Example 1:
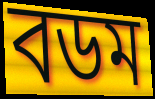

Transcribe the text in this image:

বডম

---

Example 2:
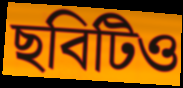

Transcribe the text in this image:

ছবিটিও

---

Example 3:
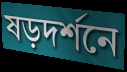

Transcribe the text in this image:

ষড়দর্শনে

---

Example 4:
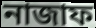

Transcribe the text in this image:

নাজাফ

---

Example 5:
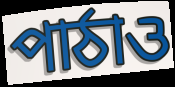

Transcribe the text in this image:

পাঠাও